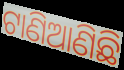
ଟାଣିଆଣିଛି